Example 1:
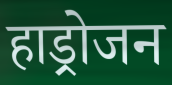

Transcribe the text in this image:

हाड्रोजन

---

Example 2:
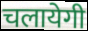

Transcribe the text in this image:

चलायेगी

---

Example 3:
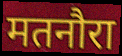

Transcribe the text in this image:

मतनौरा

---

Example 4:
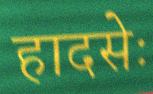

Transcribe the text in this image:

हादसेः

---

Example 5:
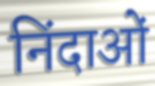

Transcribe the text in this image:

निंदाओं